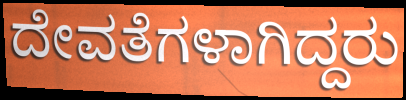
ದೇವತೆಗಳಾಗಿದ್ದರು